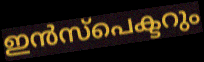
ഇൻസ്പെക്ടറും